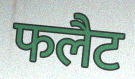
फलैट